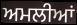
ਅਮਲੀਆਂ